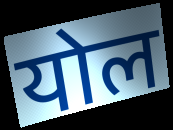
योल